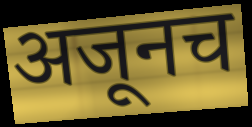
अजूनच